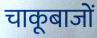
चाकूबाजों